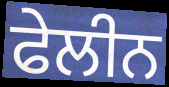
ਫੇਲੀਨ